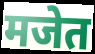
मजेत